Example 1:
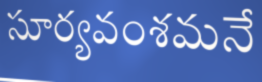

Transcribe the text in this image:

సూర్యవంశమనే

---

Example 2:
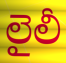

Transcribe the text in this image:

లైలీ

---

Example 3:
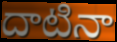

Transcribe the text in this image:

దాటినా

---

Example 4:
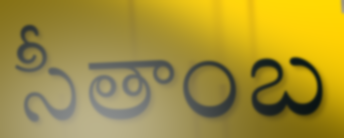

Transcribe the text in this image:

సీతాంబ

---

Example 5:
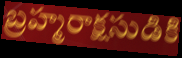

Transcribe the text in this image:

బ్రహ్మరాక్షసుడికి